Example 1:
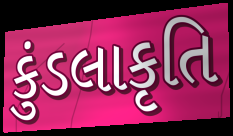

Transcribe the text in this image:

કુંડલાકૃતિ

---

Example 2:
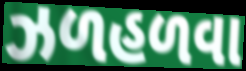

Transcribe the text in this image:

ઝળહળવા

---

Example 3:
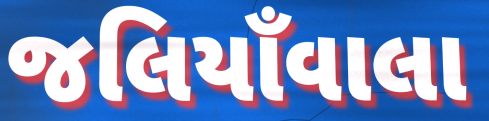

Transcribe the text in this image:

જલિયાઁવાલા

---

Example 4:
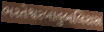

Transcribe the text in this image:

ભરતેશ્વરબાહુબલિરાસ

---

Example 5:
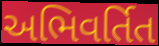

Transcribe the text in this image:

અભિવર્તિત